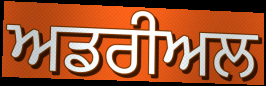
ਅਡਰੀਅਲ